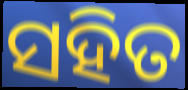
ସହିତ